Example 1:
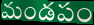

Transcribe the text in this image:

మండపం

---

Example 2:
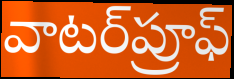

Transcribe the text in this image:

వాటర్‌ప్రూఫ్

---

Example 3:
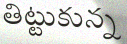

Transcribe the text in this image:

తిట్టుకున్న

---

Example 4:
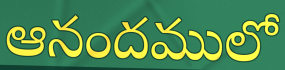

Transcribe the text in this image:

ఆనందములో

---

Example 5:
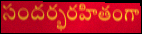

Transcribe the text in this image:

సందర్భరహితంగా